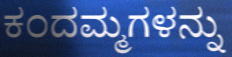
ಕಂದಮ್ಮಗಳನ್ನು